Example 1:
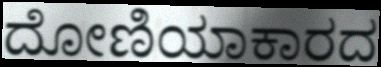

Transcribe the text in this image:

ದೋಣಿಯಾಕಾರದ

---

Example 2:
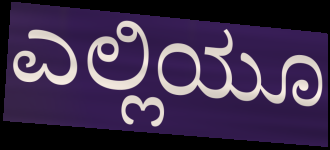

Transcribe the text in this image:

ಎಲ್ಲಿಯೂ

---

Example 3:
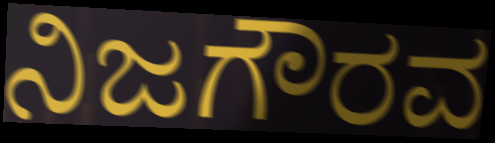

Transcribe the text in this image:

ನಿಜಗೌರವ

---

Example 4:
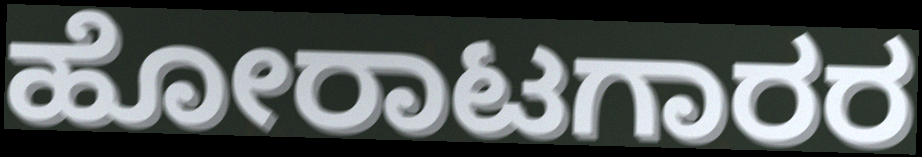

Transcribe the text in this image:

ಹೋರಾಟಗಾರರ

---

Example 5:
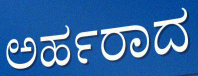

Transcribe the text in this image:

ಅರ್ಹರಾದ